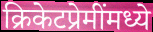
क्रिकेटप्रेमींमध्ये